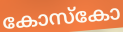
കോസ്കോ